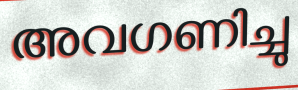
അവഗണിച്ചു